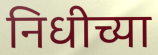
निधीच्या